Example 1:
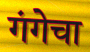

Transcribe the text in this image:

गंगेचा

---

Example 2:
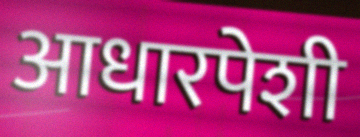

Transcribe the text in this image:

आधारपेशी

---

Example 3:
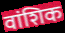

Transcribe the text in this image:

वांशिक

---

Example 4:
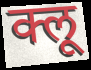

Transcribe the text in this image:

क्लू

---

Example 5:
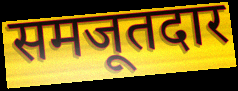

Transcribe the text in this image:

समजूतदार